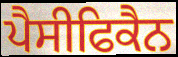
ਪੈਸੀਫਿਕੈਨ